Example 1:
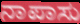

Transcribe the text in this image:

ನಾಪಾಸು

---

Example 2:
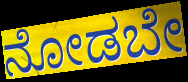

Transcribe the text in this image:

ನೋಡಬೇ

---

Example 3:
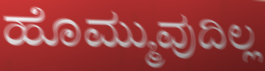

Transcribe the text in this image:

ಹೊಮ್ಮುವುದಿಲ್ಲ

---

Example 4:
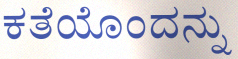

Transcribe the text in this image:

ಕತೆಯೊಂದನ್ನು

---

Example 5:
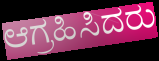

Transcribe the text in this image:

ಆಗ್ರಹಿಸಿದರು